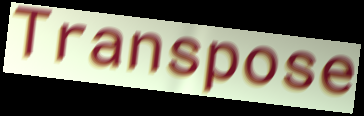
Transpose